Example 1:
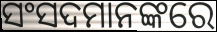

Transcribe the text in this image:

ସଂସଦମାନଙ୍କରେ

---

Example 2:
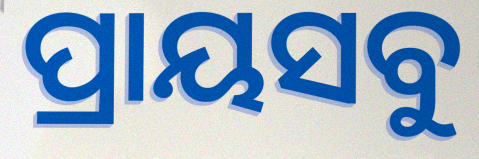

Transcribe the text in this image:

ପ୍ରାୟସବୁ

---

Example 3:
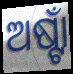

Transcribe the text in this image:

ଅଷ୍ଟାଁ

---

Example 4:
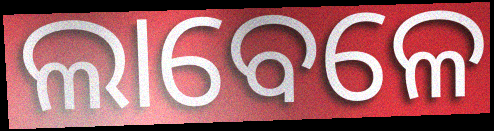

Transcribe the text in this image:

ଲାବେଳେ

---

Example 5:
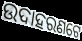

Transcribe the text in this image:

ଉଦାହରଣଟେ